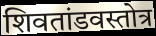
शिवतांडवस्तोत्र